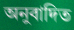
অনুবাদিত